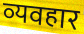
व्‍यवहार